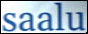
saalu